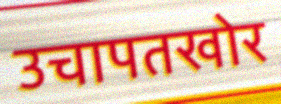
उचापतखोर